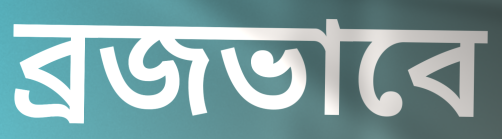
ব্রজভাবে